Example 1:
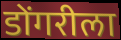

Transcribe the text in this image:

डोंगरीला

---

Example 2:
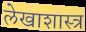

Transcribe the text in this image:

लेखाशास्त्र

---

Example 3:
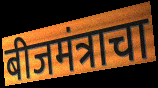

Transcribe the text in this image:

बीजमंत्राचा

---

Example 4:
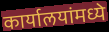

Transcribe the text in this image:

कार्यालयांमध्ये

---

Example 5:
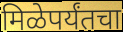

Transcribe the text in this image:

मिळेपर्यंतचा